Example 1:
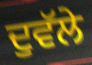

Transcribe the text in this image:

ਦੁਵੱਲੇ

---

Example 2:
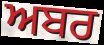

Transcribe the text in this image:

ਅਬਰ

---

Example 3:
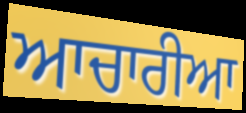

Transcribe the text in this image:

ਆਚਾਰੀਆ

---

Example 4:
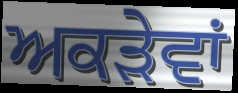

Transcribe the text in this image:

ਅਕੜੇਵਾਂ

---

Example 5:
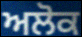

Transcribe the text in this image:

ਅਲੋਕ